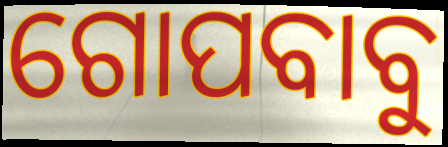
ଗୋପବାବୁ